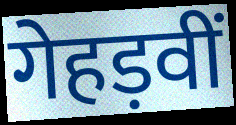
गेहड़वीं